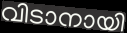
വിടാനായി